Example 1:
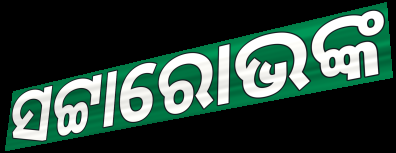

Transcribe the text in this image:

ସଟ୍ଟାରୋଭଙ୍କ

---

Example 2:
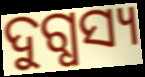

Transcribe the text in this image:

ଦୁଗ୍ଧସ୍ୟ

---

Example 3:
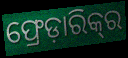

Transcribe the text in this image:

ଫ୍ରେଡ଼ାରିକ୍‍ର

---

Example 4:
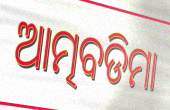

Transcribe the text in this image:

ଆତ୍ମବଡିମା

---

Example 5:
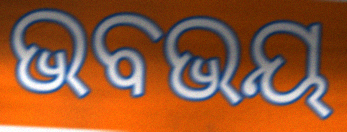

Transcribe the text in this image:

ଭବଭୟ